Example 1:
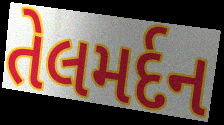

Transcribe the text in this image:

તેલમર્દન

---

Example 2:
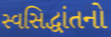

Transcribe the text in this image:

સ્વસિદ્ધાંતનો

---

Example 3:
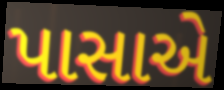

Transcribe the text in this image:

પાસાએ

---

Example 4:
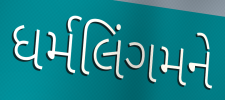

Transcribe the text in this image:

ધર્મલિંગમને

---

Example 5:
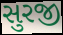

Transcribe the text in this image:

સુરજી